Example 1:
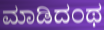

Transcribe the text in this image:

ಮಾಡಿದಂಥ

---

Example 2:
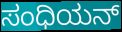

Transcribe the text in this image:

ಸಂಧಿಯನ್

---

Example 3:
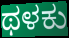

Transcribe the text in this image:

ಥಳಕು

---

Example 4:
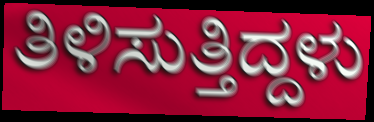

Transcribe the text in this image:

ತಿಳಿಸುತ್ತಿದ್ದಳು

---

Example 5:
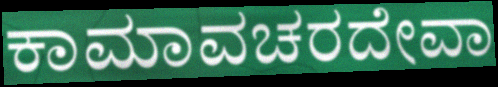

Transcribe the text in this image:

ಕಾಮಾವಚರದೇವಾ